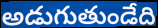
అడుగుతుండేది